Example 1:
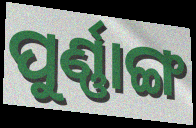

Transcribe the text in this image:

ପୁର୍ଣ୍ଣାଙ୍ଗ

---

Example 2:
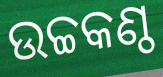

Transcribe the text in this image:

ଉଚ୍ଚକଣ୍ଠ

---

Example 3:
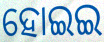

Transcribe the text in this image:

ହୋଇଇ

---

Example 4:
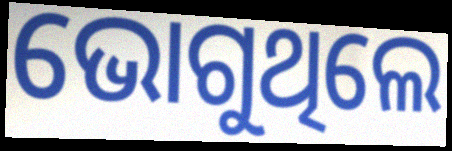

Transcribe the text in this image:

ଭୋଗୁଥିଲେ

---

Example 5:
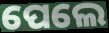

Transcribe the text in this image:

ପେଲେ